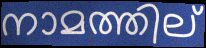
നാമത്തില്